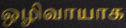
ஒழிவாயாக